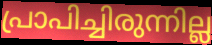
പ്രാപിച്ചിരുന്നില്ല